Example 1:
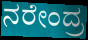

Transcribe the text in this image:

ನರೇಂದ್ರ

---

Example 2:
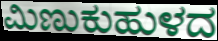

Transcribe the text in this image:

ಮಿಣುಕುಹುಳದ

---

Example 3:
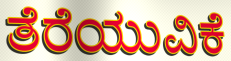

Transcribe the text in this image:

ತೆರೆಯುವಿಕೆ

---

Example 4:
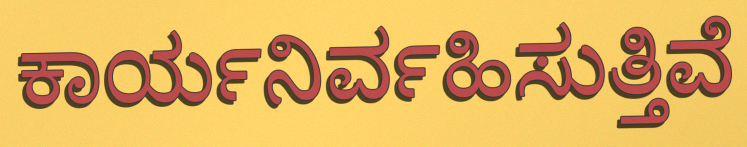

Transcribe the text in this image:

ಕಾರ್ಯನಿರ್ವಹಿಸುತ್ತಿವೆ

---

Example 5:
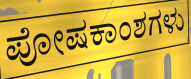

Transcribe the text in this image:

ಪೋಷಕಾಂಶಗಳು